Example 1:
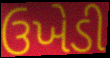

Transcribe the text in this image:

ઉખેડી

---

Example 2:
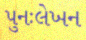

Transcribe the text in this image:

પુનઃલેખન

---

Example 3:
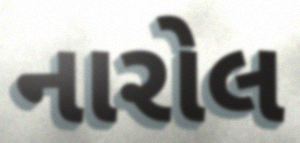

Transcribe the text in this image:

નારોલ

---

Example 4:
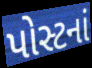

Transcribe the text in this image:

પોસ્ટનાં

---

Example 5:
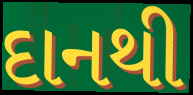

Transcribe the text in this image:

દાનથી